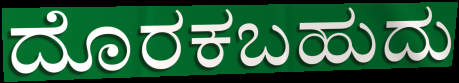
ದೊರಕಬಹುದು